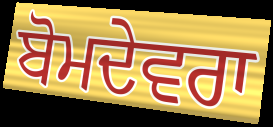
ਬੋਮਦੇਵਰਾ